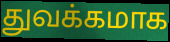
துவக்கமாக